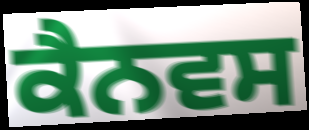
ਕੈਨਵਸ